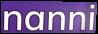
nanni